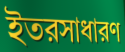
ইতরসাধারণ